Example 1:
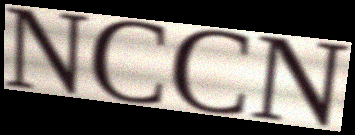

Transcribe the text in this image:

NCCN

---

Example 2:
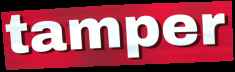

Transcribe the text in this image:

tamper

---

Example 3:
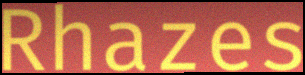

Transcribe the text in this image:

Rhazes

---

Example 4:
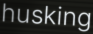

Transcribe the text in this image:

husking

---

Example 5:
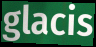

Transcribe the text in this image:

glacis